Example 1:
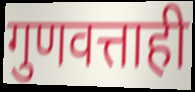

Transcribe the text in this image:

गुणवत्ताही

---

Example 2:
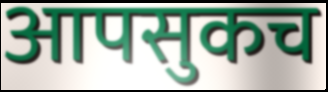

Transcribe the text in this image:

आपसुकच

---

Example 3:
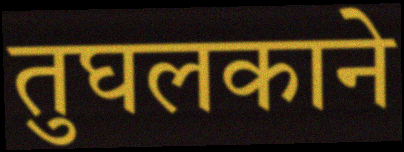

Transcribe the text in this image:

तुघलकाने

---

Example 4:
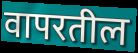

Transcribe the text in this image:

वापरतील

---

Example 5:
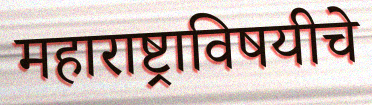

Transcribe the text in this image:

महाराष्ट्राविषयीचे